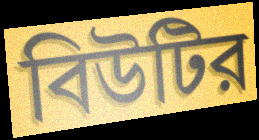
বিউটির